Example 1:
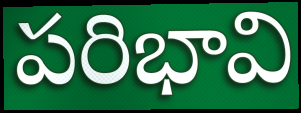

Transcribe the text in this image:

పరిభావి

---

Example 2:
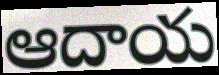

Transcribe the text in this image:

ఆదాయ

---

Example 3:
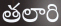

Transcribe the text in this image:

తలారి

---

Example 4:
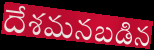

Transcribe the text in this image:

దేశమనబడిన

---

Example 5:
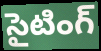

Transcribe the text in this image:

సైటింగ్